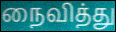
நைவித்து